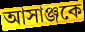
আসাঞ্জকে